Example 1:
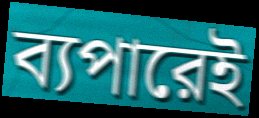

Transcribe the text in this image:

ব্যপারেই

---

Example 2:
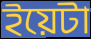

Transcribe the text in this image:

ইয়েটা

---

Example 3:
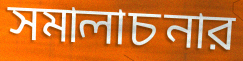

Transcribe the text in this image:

সমালাচনার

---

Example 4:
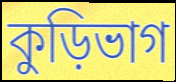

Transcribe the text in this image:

কুড়িভাগ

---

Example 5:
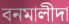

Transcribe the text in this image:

বনমালীদা